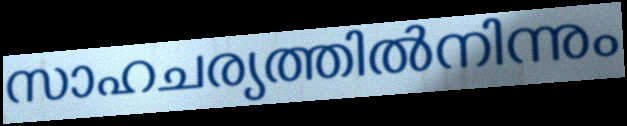
സാഹചര്യത്തിൽനിന്നും